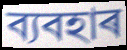
ব্যবহাৰ